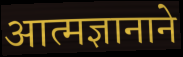
आत्मज्ञानाने